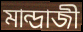
মান্দ্রাজী